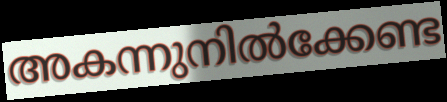
അകന്നുനിൽക്കേണ്ട